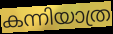
കന്നിയാത്ര